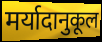
मर्यादानुकूल